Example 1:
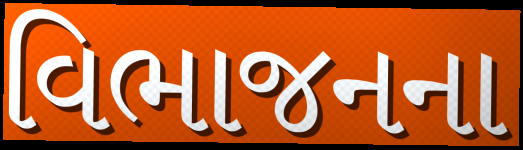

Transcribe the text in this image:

વિભાજનના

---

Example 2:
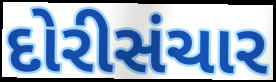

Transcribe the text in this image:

દોરીસંચાર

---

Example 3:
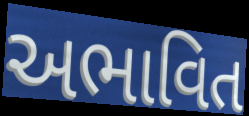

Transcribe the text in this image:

અભાવિત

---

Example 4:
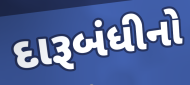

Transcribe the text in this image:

દારૂબંધીનો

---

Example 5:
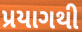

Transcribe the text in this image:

પ્રયાગથી